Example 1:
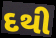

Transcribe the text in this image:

દથી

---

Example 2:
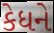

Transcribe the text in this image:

કેધને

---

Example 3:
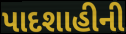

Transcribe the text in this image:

પાદશાહીની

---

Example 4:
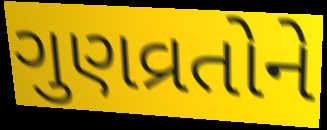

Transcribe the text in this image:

ગુણવ્રતોને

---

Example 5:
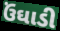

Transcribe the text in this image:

ઉંઘાડી